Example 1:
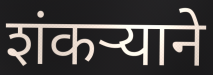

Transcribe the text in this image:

शंकर्‍याने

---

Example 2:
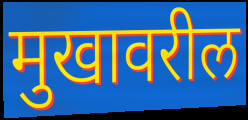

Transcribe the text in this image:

मुखावरील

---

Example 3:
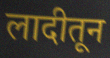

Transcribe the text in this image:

लादीतून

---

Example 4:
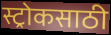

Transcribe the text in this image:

स्ट्रोकसाठी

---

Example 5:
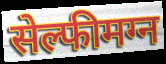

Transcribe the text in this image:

सेल्फीमग्न